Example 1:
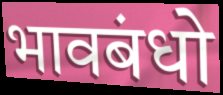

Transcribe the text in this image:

भावबंधो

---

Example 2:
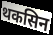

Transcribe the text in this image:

थकसिन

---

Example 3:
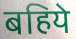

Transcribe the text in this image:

बहिये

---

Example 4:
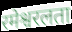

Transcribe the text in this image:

रमेश्वरलता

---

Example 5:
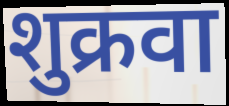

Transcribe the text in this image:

शुक्रवा